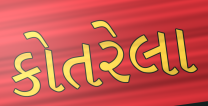
કોતરેલા